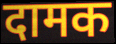
दामक